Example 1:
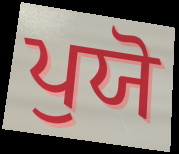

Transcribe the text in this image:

ਪੁਯੋ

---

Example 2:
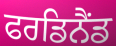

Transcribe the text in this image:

ਫਰਡਿਨੈਂਡ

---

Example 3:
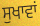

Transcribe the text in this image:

ਸੁਖਾਵਾਂ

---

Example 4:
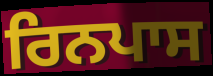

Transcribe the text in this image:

ਰਿਨਪਾਸ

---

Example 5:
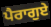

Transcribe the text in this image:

ਪੈਰਾਗੁਏ